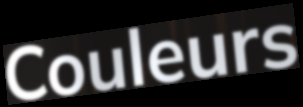
Couleurs